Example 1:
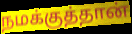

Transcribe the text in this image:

நமக்குத்தான்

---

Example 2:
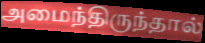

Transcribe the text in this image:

அமைந்திருந்தால்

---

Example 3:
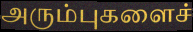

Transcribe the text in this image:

அரும்புகளைச்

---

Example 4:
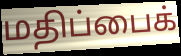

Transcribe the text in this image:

மதிப்பைக்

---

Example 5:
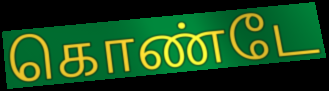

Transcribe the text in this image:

கொண்டே